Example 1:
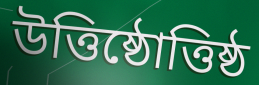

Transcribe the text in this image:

উত্তিষ্ঠোত্তিষ্ঠ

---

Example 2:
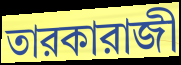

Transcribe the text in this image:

তারকারাজী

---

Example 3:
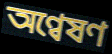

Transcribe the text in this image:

অণ্বেষণ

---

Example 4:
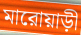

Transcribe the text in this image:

মারোয়াড়ী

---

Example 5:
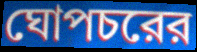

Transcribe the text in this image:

ঘোপচরের